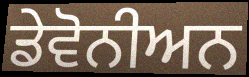
ਡੇਵੋਨੀਅਨ